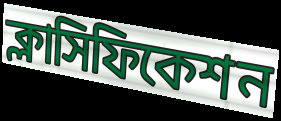
ক্লাসিফিকেশন